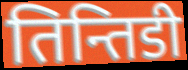
तिन्तिडी